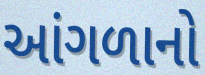
આંગળાનો